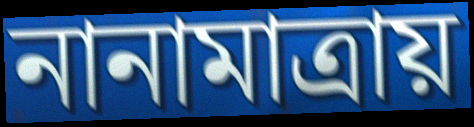
নানামাত্রায়